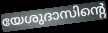
യേശുദാസിന്റെ